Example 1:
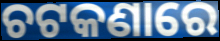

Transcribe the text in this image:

ଚଟକଣାରେ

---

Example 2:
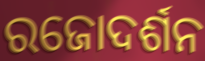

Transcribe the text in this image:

ରଜୋଦର୍ଶନ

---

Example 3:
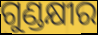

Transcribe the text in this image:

ଗୁଣ୍ଡକ୍ଷୀର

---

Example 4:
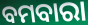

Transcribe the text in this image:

ବମବାରା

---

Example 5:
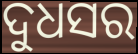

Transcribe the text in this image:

ଦୁଧସର